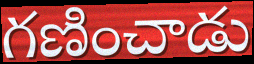
గణించాడు